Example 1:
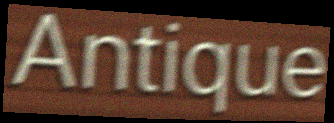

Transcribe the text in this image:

Antique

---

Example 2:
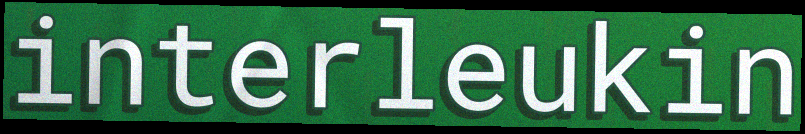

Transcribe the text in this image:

interleukin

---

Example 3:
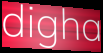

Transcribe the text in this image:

digha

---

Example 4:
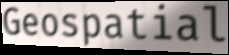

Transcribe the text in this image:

Geospatial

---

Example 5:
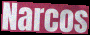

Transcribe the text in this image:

Narcos